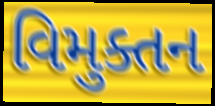
વિમુક્તન